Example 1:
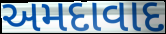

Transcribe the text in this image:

અમદાવાદ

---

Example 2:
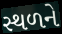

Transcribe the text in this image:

સ્થળને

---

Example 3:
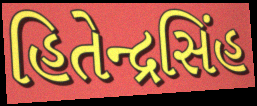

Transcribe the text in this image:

હિતેન્દ્રસિંહ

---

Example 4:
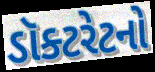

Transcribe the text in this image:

ડૉક્ટરેટનો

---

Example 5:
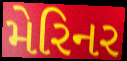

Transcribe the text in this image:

મેરિનર